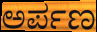
ಅರ್ಪಣ